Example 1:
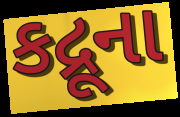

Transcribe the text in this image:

કદ્રૂના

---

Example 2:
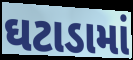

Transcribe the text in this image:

ઘટાડામાં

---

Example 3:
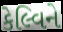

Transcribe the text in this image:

કેલ્વિને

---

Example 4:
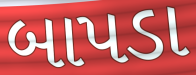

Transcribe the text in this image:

બાપડા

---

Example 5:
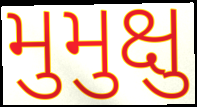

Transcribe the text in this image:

મુમુક્ષુ